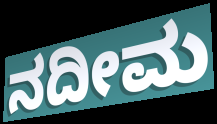
ನದೀಮ